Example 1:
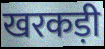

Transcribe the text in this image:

खरकड़ी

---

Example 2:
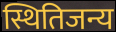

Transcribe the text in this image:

स्थितिजन्य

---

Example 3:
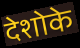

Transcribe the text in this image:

देशोके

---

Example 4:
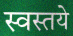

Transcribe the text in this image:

स्वस्तये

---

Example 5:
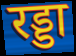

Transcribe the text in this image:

रड्डा